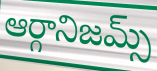
ఆర్గానిజమ్స్